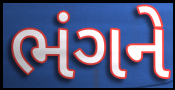
ભંગને